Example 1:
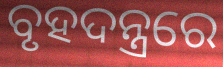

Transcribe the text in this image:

ବୃହଦନ୍ତ୍ରରେ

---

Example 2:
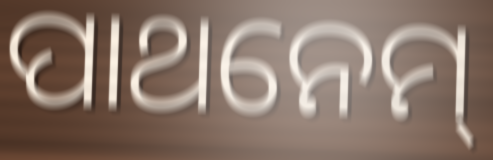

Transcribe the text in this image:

ପାଥନେମ୍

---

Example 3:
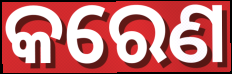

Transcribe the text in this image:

କରେଣ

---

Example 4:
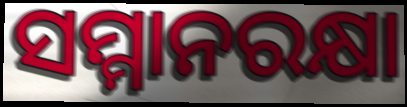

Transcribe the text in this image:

ସମ୍ମାନରକ୍ଷା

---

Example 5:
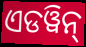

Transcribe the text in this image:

ଏଡୱିନ୍